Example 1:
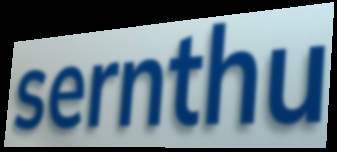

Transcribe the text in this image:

sernthu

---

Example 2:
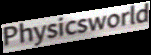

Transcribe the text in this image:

Physicsworld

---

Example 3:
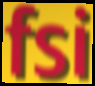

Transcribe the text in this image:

fsi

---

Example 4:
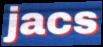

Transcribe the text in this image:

jacs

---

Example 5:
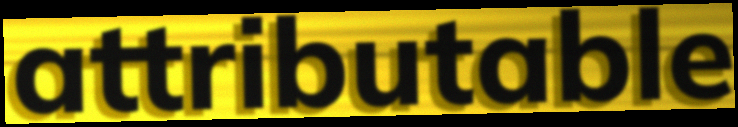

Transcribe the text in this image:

attributable